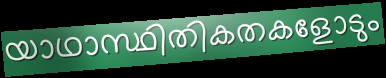
യാഥാസ്ഥിതികതകളോടും